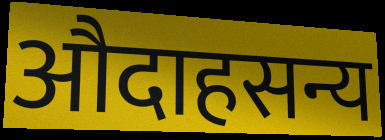
औदाहसन्य